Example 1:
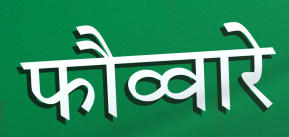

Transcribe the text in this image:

फौव्वारे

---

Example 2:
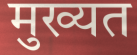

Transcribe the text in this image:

मुख्‍यत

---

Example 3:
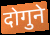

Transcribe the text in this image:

दोगुने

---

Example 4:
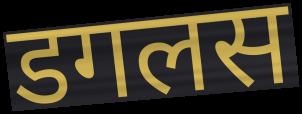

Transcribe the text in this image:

डगलस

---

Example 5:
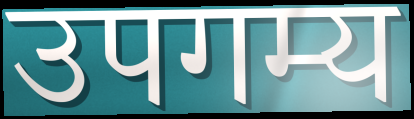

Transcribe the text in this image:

उपगम्य